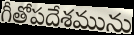
గీతోపదేశమును